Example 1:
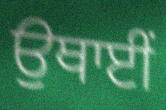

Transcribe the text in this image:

ਉਥਾਈਂ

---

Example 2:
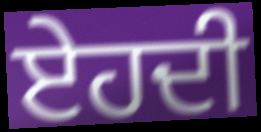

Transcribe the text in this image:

ਏਹਦੀ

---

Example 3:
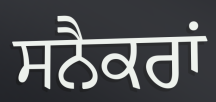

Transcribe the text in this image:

ਸਨੈਕਰਾਂ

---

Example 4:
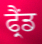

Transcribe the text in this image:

ਫ੍ਰੈਂਡ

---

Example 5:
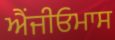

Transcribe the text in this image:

ਐਂਜੀਓਮਾਸ